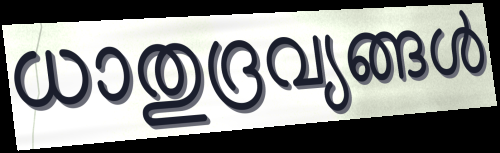
ധാതുദ്രവ്യങ്ങൾ